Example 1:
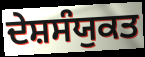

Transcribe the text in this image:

ਦੇਸ਼ਸੰਯੁਕਤ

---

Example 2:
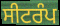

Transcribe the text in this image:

ਸੀਟਰੰਪ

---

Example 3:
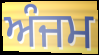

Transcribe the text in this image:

ਅੰਜਮ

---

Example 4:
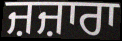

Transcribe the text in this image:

ਜ਼ਜ਼ਾਰਾ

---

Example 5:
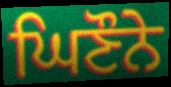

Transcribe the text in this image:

ਘਿਣੌਨੇ